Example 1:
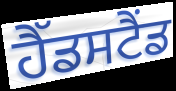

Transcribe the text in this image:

ਹੈੱਡਸਟੈਂਡ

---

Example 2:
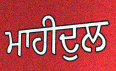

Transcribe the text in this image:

ਮਾਹੀਦੁਲ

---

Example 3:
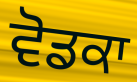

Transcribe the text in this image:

ਵੋਡਕਾ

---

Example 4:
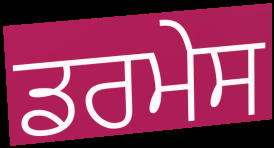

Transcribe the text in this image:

ਡਰਮੇਸ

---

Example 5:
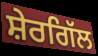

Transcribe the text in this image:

ਸ਼ੇਰਗਿੱਲ